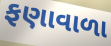
ફણાવાળા